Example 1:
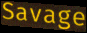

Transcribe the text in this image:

Savage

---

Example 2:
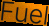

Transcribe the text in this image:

Fuel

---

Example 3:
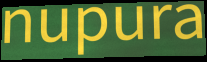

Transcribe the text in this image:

nupura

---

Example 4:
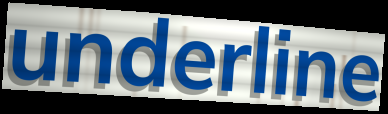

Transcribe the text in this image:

underline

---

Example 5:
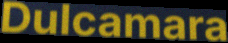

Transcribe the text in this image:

Dulcamara